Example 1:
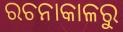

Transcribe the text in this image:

ରଚନାକାଳରୁ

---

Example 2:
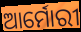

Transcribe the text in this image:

ଆର୍ମୋରୀ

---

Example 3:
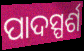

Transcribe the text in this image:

ପାଦସ୍ପର୍ଶ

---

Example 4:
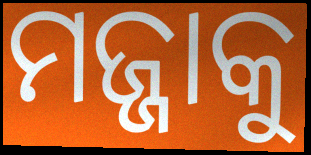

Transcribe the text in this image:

ମଜ୍ଜାକୁ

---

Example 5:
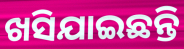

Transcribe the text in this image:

ଖସିଯାଇଛନ୍ତି